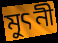
মুৎনী